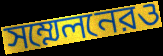
সম্মেলনেরও